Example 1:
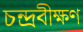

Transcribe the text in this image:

চন্দ্রবীক্ষণ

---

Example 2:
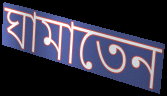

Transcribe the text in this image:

ঘামাতেন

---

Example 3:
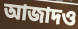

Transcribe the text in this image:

আজাদও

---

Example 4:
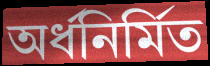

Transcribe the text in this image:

অর্ধনির্মিত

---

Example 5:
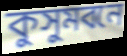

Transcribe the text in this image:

কুসুমবনে